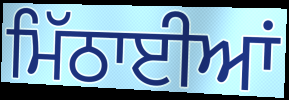
ਮਿੱਠਾਈਆਂ